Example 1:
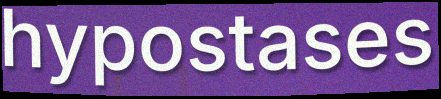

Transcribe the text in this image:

hypostases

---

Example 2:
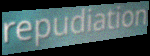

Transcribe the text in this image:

repudiation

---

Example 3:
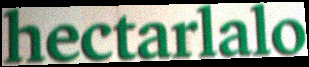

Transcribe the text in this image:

hectarlalo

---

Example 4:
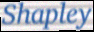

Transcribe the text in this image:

Shapley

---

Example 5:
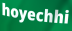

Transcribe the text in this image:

hoyechhi